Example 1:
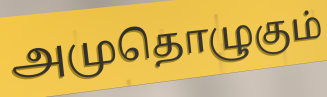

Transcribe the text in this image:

அமுதொழுகும்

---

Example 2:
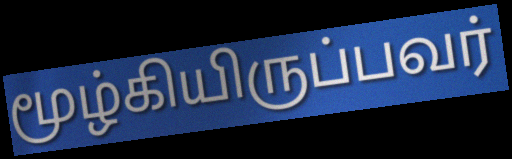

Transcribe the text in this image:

மூழ்கியிருப்பவர்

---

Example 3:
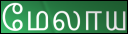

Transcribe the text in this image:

மேலாய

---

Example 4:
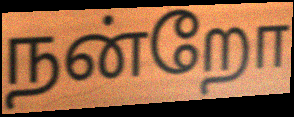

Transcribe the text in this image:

நன்றோ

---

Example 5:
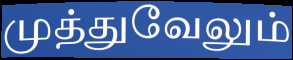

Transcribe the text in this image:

முத்துவேலும்